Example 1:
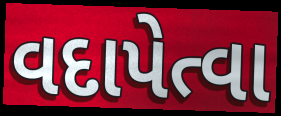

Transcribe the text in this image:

વદાપેત્વા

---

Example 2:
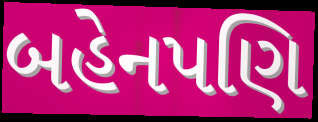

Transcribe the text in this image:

બહેનપણિ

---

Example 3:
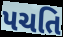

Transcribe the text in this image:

પચતિ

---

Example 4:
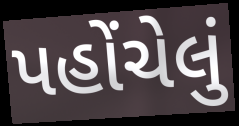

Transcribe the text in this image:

પહોંચેલું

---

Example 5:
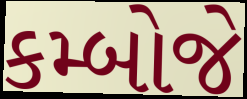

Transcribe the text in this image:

કમ્બોજે